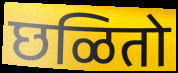
छळितो